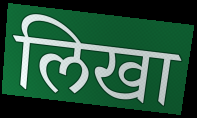
लिखा